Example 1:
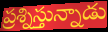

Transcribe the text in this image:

ప్రశ్నిస్తున్నాడు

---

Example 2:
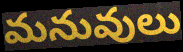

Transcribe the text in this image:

మనువులు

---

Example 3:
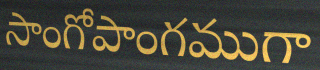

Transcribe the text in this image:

సాంగోపాంగముగా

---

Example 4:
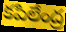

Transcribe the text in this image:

కపిలేంద్ర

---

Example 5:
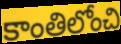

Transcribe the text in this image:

కాంతిలోంచి